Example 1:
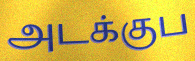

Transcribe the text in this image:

அடக்குப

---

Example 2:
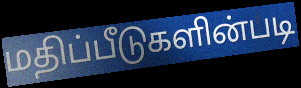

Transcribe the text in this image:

மதிப்பீடுகளின்படி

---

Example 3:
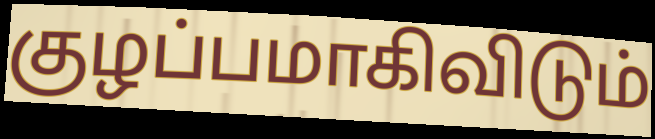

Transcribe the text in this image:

குழப்பமாகிவிடும்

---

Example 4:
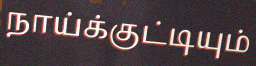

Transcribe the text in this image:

நாய்க்குட்டியும்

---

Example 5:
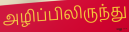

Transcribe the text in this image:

அழிப்பிலிருந்து